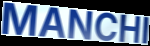
MANCHI